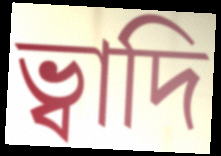
ভ্বাদি